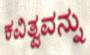
ಕವಿತ್ವವನ್ನು